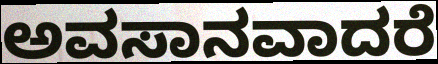
ಅವಸಾನವಾದರೆ